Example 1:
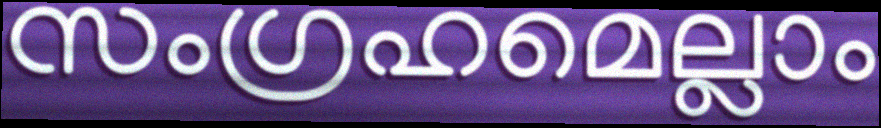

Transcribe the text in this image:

സംഗ്രഹമെല്ലാം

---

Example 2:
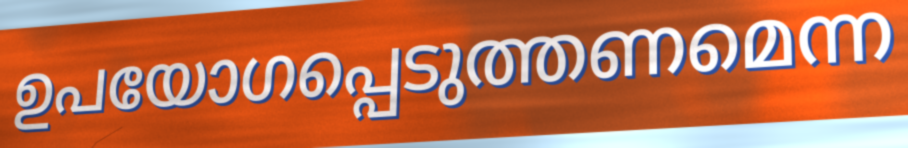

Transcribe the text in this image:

ഉപയോഗപ്പെടുത്തണമെന്ന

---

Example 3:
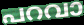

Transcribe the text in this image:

പറവാ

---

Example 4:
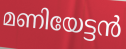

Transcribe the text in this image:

മണിയേട്ടൻ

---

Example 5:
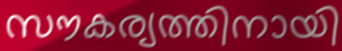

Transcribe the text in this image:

സൗകര്യത്തിനായി